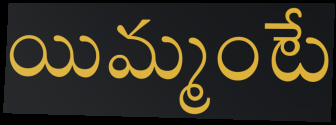
యిమ్మంటే